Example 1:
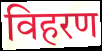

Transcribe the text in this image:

विहरण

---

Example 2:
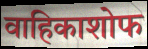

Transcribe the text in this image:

वाहिकाशोफ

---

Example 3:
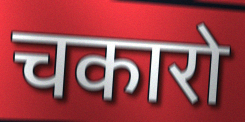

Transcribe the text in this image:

चकारो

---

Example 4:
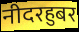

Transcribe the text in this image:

नीदरहुबर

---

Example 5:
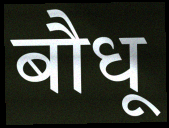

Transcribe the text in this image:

बौधू